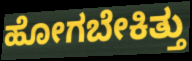
ಹೋಗಬೇಕಿತ್ತು